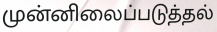
முன்னிலைப்படுத்தல்